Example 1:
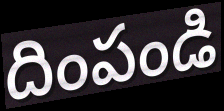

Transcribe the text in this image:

దింపండి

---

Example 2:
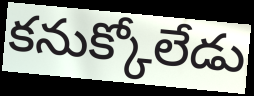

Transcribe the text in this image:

కనుక్కోలేడు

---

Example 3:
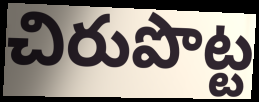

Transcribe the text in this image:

చిరుపొట్ట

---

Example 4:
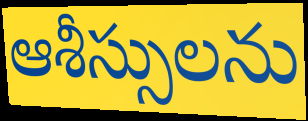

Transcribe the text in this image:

ఆశీస్సులను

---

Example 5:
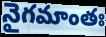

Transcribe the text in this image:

నైగమాంతః